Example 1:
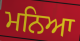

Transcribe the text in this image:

ਮਨਿਆ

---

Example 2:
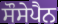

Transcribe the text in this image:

ਸੌਸੇਪੈਨ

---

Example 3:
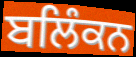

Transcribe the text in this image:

ਬਲਿੰਕਨ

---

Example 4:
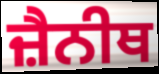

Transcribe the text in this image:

ਜ਼ੈਨੀਥ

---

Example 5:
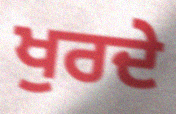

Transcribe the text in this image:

ਖੁਰਦੇ